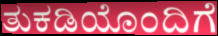
ತುಕಡಿಯೊಂದಿಗೆ